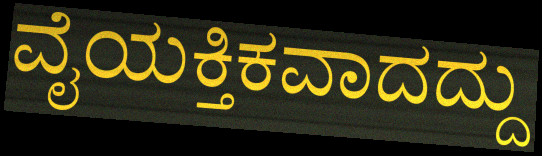
ವೈಯಕ್ತಿಕವಾದದ್ದು